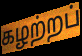
கழற்றப்